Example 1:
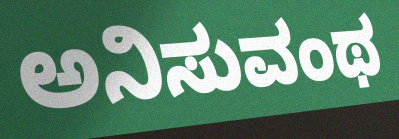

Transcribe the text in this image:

ಅನಿಸುವಂಥ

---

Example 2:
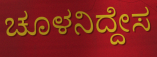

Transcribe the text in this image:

ಚೂಳನಿದ್ದೇಸ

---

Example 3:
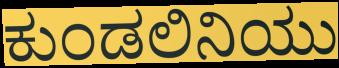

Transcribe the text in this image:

ಕುಂಡಲಿನಿಯು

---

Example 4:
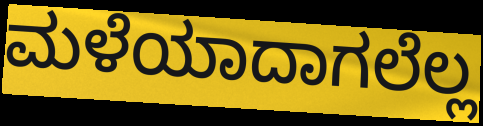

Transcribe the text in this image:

ಮಳೆಯಾದಾಗಲೆಲ್ಲ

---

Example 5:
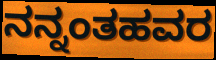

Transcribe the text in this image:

ನನ್ನಂತಹವರ